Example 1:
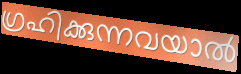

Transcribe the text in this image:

ഗ്രഹിക്കുന്നവയാൽ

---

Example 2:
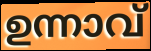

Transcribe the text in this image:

ഉന്നാവ്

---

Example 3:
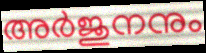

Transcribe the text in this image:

അർജുനനും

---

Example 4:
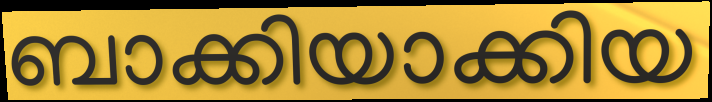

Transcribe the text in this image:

ബാക്കിയാക്കിയ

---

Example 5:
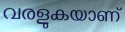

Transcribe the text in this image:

വരളുകയാണ്